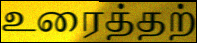
உரைத்தற்